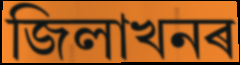
জিলাখনৰ